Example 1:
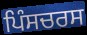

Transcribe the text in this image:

ਪਿੰਸਚਰਸ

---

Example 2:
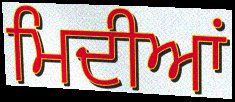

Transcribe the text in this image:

ਮਿਦੀਆਂ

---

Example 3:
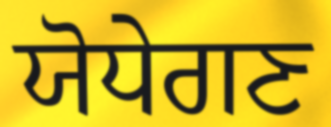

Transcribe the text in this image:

ਯੋਧੇਗਣ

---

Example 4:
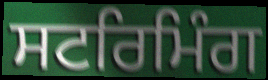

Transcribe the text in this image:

ਸਟਰਿਮਿੰਗ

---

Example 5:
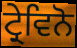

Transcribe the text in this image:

ਟ੍ਰੇਵਿਨੋ